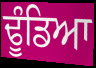
ਢੂੰਡਿਆ